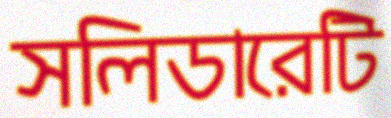
সলিডারেটি